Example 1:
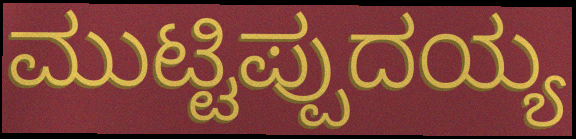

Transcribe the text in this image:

ಮುಟ್ಟಿಪ್ಪುದಯ್ಯ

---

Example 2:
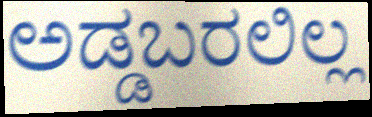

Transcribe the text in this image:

ಅಡ್ಡಬರಲಿಲ್ಲ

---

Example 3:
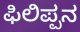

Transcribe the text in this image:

ಫಿಲಿಪ್ಪನ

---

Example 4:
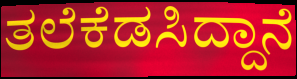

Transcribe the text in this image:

ತಲೆಕೆಡಸಿದ್ದಾನೆ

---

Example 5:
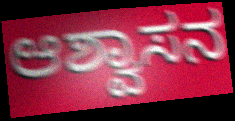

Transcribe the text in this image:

ಆಶ್ವಾಸನ